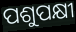
ପଶୁପକ୍ଷୀ